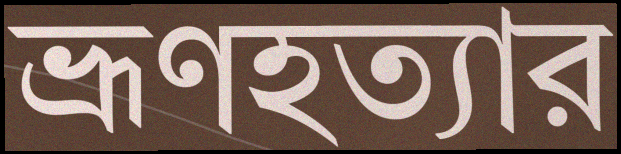
ভ্রূণহত্যার